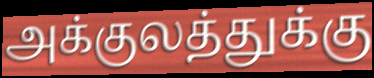
அக்குலத்துக்கு